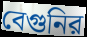
বেগুনির